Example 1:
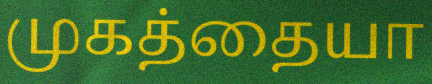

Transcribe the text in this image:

முகத்தையா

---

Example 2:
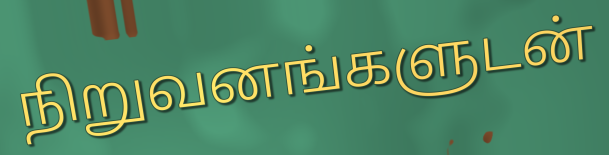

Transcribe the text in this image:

நிறுவனங்களுடன்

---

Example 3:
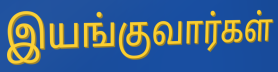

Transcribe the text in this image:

இயங்குவார்கள்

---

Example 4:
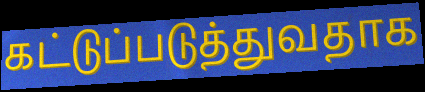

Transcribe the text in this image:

கட்டுப்படுத்துவதாக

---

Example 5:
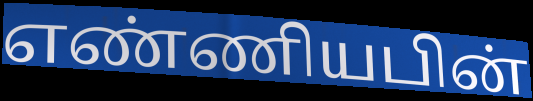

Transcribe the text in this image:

எண்ணியபின்